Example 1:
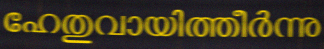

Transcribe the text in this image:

ഹേതുവായിത്തീർന്നു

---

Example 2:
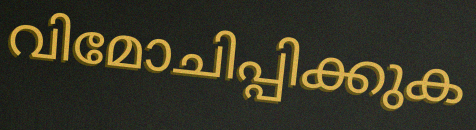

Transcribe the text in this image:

വിമോചിപ്പിക്കുക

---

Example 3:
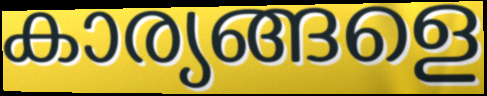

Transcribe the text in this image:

കാര്യങ്ങളെ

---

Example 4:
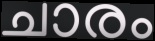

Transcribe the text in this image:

ചാരം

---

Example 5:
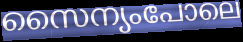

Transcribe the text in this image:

സൈന്യംപോലെ